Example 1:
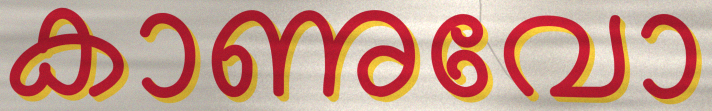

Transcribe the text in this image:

കാണുവോ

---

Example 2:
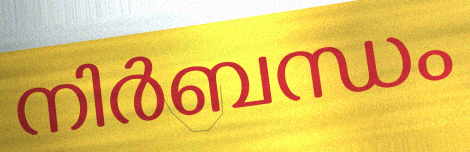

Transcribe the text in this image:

നിർബന്ധം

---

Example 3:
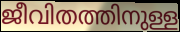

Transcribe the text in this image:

ജീവിതത്തിനുള്ള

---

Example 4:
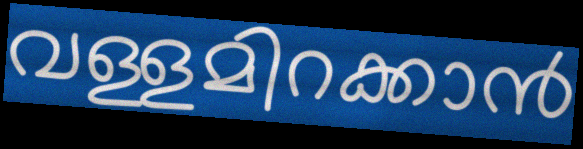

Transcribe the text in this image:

വള്ളമിറക്കാൻ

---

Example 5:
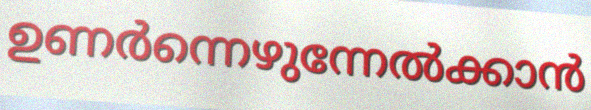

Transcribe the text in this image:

ഉണർന്നെഴുന്നേൽക്കാൻ